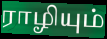
ராழியும்